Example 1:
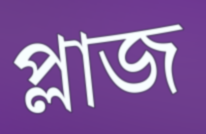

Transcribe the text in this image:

প্লাজ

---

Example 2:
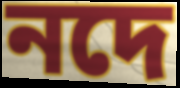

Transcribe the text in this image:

নদে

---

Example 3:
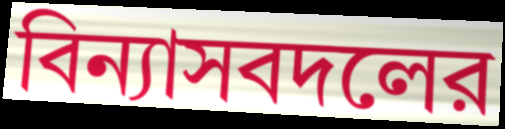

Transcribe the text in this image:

বিন্যাসবদলের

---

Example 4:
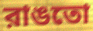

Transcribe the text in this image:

রাঙতো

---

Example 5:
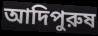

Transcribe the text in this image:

আদিপুরুষ